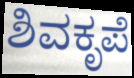
ಶಿವಕೃಪೆ